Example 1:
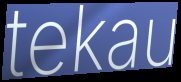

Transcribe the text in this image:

tekau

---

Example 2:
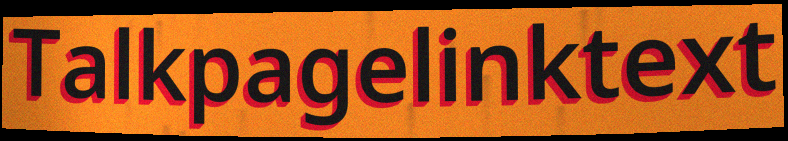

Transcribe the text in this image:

Talkpagelinktext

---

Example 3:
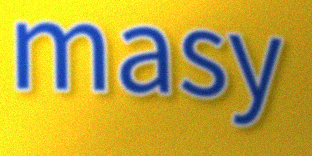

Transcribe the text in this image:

masy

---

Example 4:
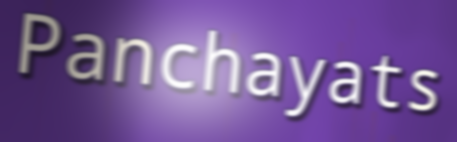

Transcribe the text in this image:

Panchayats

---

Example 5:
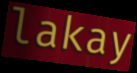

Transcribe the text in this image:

lakay